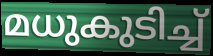
മധുകുടിച്ച്